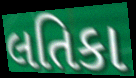
લતિકા